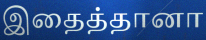
இதைத்தானா